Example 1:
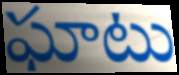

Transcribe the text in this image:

ఘాటు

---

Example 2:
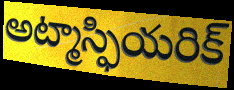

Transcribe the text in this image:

అట్మాస్ఫియరిక్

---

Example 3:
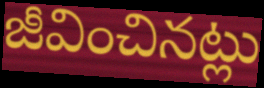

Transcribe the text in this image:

జీవించినట్లు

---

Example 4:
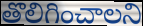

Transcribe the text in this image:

తొలిగించాలని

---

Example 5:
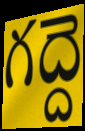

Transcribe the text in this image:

గద్దె